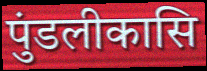
पुंडलीकासि